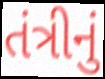
તંત્રીનું